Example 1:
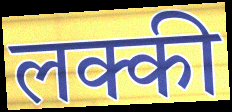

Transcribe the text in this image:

लक्की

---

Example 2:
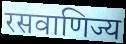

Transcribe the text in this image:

रसवाणिज्य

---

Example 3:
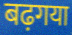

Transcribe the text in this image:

बढ़गया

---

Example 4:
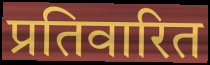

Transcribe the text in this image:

प्रतिवारित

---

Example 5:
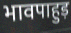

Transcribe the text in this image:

भावपाहुड़